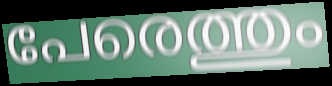
പേരെത്തും